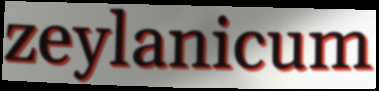
zeylanicum